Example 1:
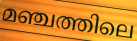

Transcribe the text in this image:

മഞ്ചത്തിലെ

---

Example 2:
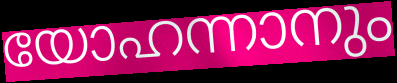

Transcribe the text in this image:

യോഹന്നാനും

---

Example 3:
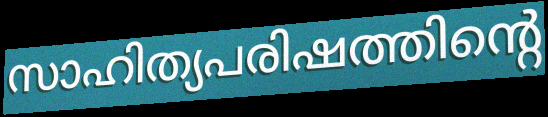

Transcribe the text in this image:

സാഹിത്യപരിഷത്തിന്റെ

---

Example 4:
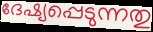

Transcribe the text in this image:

ദേഷ്യപ്പെടുന്നതു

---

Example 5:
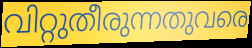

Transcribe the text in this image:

വിറ്റുതീരുന്നതുവരെ